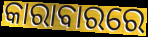
କାରାବାରରେ